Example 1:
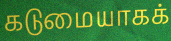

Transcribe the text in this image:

கடுமையாகக்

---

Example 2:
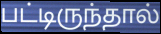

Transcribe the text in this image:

பட்டிருந்தால்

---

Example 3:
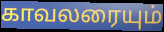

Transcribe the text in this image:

காவலரையும்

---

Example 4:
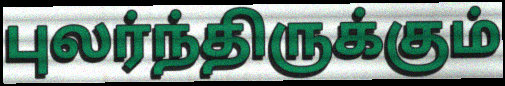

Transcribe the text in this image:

புலர்ந்திருக்கும்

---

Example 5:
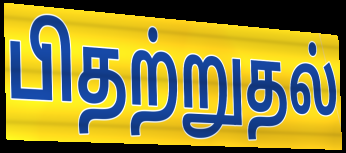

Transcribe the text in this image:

பிதற்றுதல்